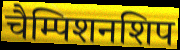
चैम्पिशनशिप